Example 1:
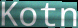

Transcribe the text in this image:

Kotn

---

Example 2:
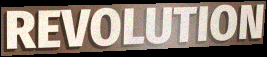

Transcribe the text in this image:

REVOLUTION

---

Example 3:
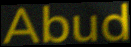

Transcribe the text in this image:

Abud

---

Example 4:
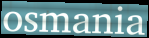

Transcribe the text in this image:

osmania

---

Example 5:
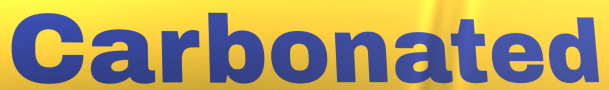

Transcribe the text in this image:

Carbonated